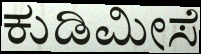
ಕುಡಿಮೀಸೆ